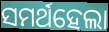
ସମର୍ଥହେଲା